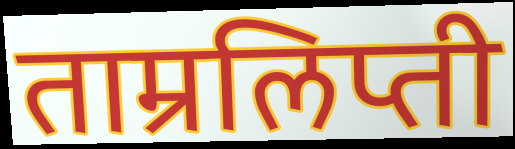
ताम्रलिप्ती